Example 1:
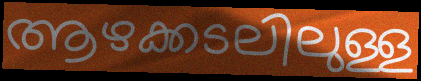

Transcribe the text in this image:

ആഴക്കടലിലുള്ള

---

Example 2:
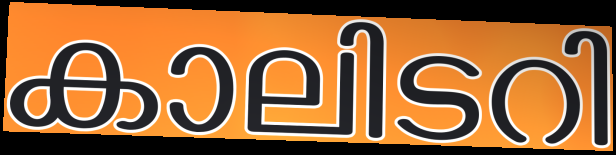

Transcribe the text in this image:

കാലിടറി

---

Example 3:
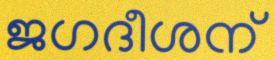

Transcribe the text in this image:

ജഗദീശന്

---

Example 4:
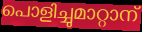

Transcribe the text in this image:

പൊളിച്ചുമാറ്റാന്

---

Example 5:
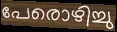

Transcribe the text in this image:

പേരൊഴിച്ചു